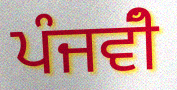
ਪੰਜਵੀਁ